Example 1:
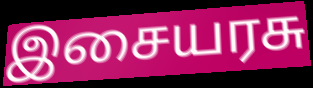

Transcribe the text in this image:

இசையரசு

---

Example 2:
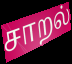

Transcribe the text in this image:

சாறல்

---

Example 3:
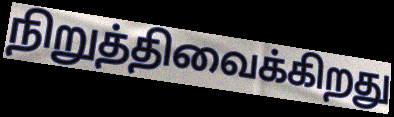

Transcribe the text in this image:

நிறுத்திவைக்கிறது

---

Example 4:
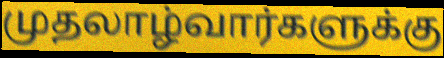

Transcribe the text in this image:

முதலாழ்வார்களுக்கு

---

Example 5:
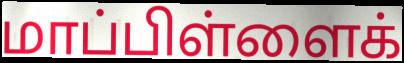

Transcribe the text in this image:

மாப்பிள்ளைக்